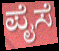
ಪೈಸೆ